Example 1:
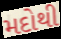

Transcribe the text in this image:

મદોથી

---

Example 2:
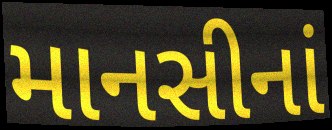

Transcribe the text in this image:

માનસીનાં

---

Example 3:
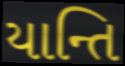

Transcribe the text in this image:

યાન્તિ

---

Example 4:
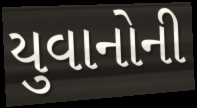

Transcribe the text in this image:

યુવાનોની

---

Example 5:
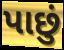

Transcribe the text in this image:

પાછું